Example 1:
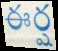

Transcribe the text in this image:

ఈర్ష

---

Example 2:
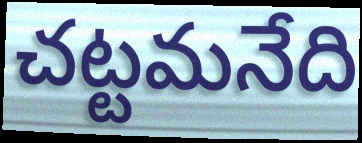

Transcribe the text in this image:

చట్టమనేది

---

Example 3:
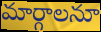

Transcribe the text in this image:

మార్గాలనూ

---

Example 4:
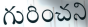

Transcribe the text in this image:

గురించని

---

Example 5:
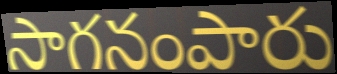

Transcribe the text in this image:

సాగనంపారు